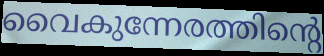
വൈകുന്നേരത്തിന്റെ